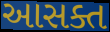
આસક્ત